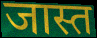
जास्त